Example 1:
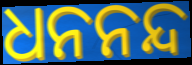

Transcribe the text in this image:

ଧନନନ୍ଦ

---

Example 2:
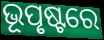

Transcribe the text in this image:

ଭୂପୃଷ୍ଟରେ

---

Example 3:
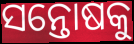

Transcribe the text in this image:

ସନ୍ତୋଷକୁ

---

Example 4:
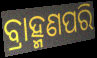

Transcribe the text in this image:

ବ୍ରାହ୍ମଣପରି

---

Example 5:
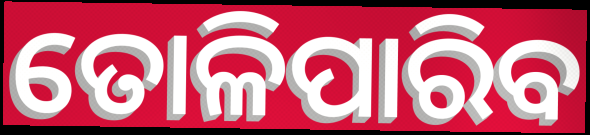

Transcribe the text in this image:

ତୋଳିପାରିବ